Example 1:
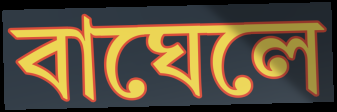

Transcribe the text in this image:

বাঘেলে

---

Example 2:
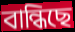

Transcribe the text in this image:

বান্ধিছে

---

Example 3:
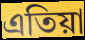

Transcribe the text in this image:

এতিয়া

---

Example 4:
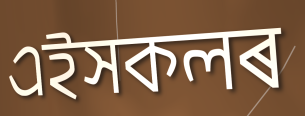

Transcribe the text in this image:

এইসকলৰ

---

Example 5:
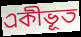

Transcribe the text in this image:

একীভূত